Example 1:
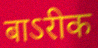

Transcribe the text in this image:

बाऽरीक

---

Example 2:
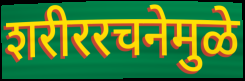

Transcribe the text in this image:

शरीररचनेमुळे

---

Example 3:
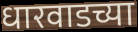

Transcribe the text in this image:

धारवाडच्या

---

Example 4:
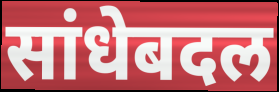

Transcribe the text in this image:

सांधेबदल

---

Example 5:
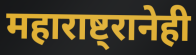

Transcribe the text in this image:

महाराष्ट्रानेही